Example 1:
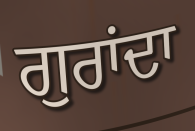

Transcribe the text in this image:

ਗੁਰਾਂਦਾ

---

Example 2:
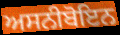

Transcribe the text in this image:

ਅਸਨੀਬੋਇਨ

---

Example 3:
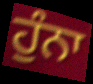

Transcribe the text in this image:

ਹੁੰਨਾ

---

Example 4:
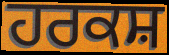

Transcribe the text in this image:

ਹਰਕਸ਼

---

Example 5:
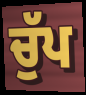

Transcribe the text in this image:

ਚੁੱਪ